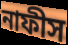
নাফীস